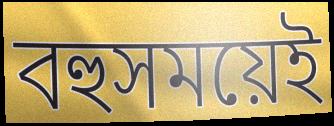
বহুসময়েই